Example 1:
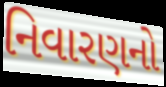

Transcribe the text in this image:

નિવારણનો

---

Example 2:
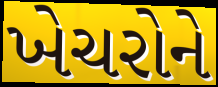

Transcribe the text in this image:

ખેચરોને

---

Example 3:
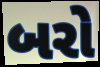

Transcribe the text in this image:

બરો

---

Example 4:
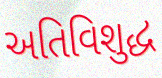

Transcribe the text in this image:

અતિવિશુદ્ધ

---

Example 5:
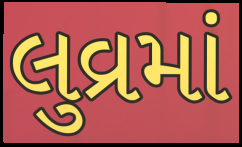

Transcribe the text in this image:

લુવ્રમાં